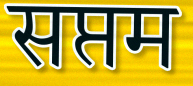
सप्तम